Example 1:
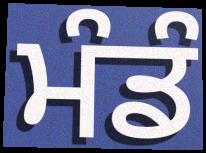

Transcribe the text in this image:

ਮੰਡੰ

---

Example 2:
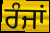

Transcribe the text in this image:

ਰੰਜਾਂ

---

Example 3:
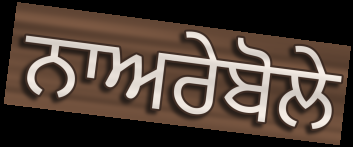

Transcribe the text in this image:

ਨਾਅਰੇਬੋਲੇ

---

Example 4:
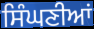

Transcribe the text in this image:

ਸਿੰਘਣੀਆਂ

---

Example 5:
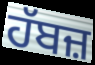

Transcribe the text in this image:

ਹੱਬਜ਼